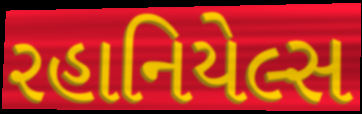
રહાનિયેલ્સ